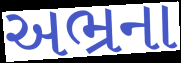
અભ્રના